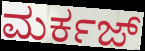
ಮರ್ಕಜ್